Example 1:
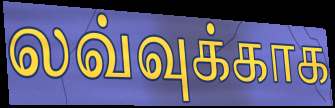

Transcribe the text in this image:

லவ்வுக்காக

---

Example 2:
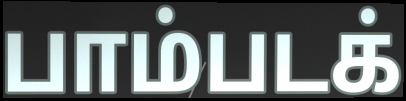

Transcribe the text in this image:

பாம்படக்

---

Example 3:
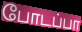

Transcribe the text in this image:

போடப்பா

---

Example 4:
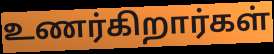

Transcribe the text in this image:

உணர்கிறார்கள்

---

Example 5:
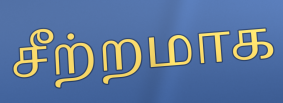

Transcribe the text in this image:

சீற்றமாக